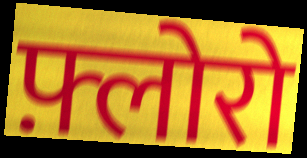
फ़्लोरो